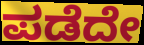
ಪಡೆದೇ